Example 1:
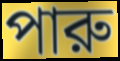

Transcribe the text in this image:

পারু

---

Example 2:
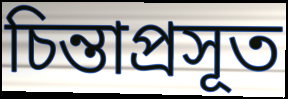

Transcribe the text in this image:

চিন্তাপ্রসূত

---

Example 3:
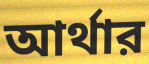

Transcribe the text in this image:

আর্থার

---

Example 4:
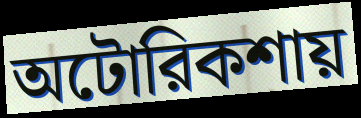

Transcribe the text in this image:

অটোরিকশায়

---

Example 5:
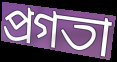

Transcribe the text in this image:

প্রগতা